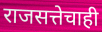
राजसत्तेचाही